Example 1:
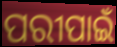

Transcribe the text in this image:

ପରୀପାଇଁ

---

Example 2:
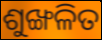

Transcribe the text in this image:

ଶୁଙ୍ଖଳିତ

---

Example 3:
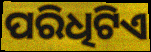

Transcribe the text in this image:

ପରିଧିଟିଏ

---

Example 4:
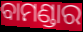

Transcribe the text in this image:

ବାମଣ୍ଡାର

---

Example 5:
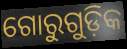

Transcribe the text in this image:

ଗୋରୁଗୁଡ଼ିକ